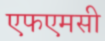
एफएमसी